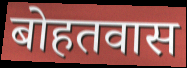
बोहतवास